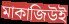
মাকাজিউই